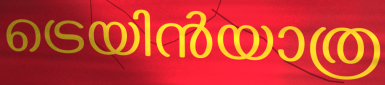
ട്രെയിൻയാത്ര